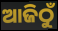
ଆଜିଠୁଁ